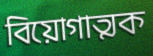
বিয়োগাত্মক